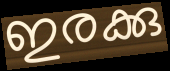
ഇരക്കു